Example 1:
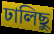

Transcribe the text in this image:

ঢালিছু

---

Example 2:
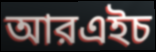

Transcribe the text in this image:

আরএইচ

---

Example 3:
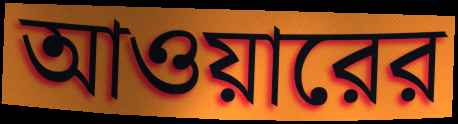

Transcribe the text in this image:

আওয়ারের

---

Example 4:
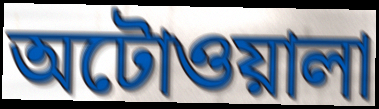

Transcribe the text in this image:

অটোওয়ালা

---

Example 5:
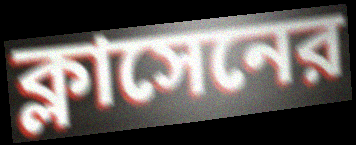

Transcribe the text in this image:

ক্লাসেনের